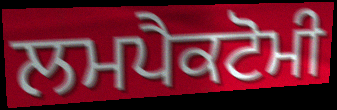
ਲਮਪੈਕਟੋਮੀ